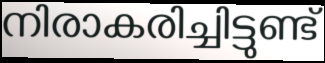
നിരാകരിച്ചിട്ടുണ്ട്